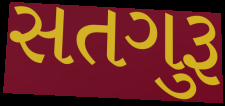
સતગુરૂ